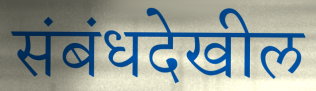
संबंधदेखील